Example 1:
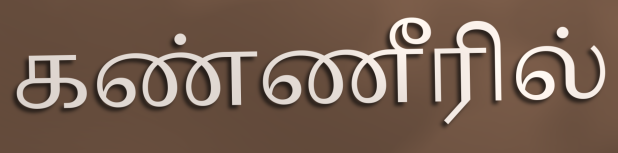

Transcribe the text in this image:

கண்ணீரில்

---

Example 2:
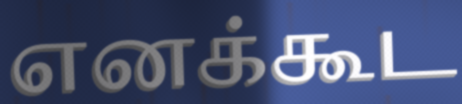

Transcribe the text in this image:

எனக்கூட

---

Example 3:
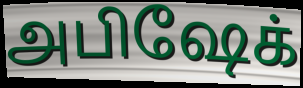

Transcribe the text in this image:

அபிஷேக்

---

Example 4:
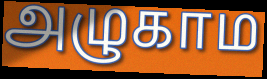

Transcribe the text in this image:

அழுகாம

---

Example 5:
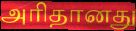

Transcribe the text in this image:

அரிதானது